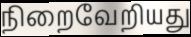
நிறைவேறியது